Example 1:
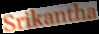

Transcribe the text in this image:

Srikantha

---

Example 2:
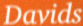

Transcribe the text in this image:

Davids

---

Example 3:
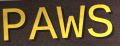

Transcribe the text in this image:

PAWS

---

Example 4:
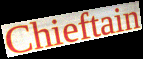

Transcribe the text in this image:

Chieftain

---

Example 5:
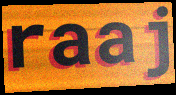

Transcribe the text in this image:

raaj